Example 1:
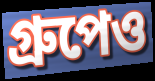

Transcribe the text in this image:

গ্রুপেও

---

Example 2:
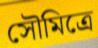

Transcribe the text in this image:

সৌমিত্রে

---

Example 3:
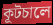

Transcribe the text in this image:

কূটচালে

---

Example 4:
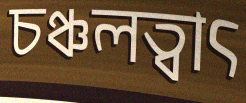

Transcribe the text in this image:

চঞ্চলত্বাৎ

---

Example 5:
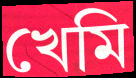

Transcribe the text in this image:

খেমি